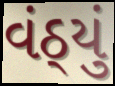
વંઠ્યું